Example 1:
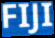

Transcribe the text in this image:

FIJI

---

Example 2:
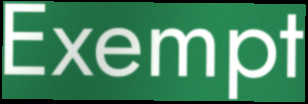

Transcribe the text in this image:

Exempt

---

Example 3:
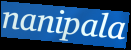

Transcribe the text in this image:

nanipala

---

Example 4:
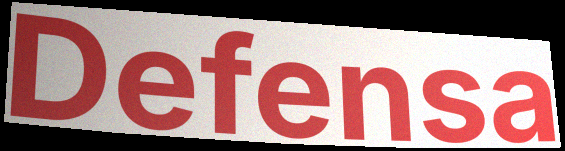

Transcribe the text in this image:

Defensa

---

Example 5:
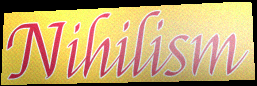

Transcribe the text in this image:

Nihilism